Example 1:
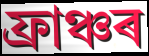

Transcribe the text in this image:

ফ্ৰাঞ্চৰ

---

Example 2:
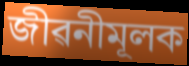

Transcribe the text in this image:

জীৱনীমূলক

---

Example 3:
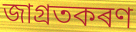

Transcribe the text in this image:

জাগ্ৰতকৰণ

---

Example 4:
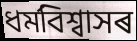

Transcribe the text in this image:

ধৰ্মবিশ্বাসৰ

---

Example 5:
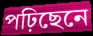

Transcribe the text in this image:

পঢ়িছেনে